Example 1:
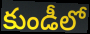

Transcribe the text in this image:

కుండీలో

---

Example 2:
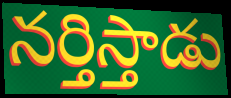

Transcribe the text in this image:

నర్తిస్తాడు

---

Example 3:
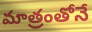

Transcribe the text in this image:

మాత్రంతోనే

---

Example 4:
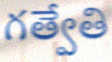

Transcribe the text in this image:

గత్వేతి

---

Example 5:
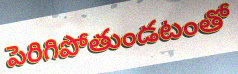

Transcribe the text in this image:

పెరిగిపోతుండటంతో